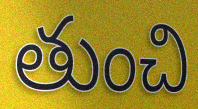
తుంచి